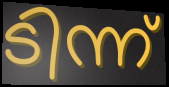
ടിന്ന്